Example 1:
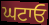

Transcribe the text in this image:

ਘਟਾਓ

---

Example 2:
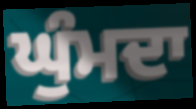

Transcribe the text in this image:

ਘੁੰਮਦਾ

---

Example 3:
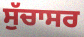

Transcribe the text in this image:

ਸੁੱਚਾਸਰ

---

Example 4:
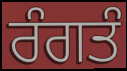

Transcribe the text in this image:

ਰੰਗਤੰ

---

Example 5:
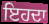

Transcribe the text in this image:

ਇਹਦਾ